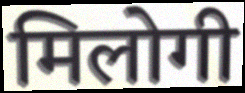
मिलोगी